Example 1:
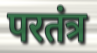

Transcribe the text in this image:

परतंत्र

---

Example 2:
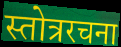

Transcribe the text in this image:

स्तोत्ररचना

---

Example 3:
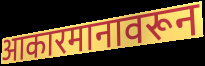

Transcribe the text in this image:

आकारमानावरून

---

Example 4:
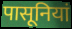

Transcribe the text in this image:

पासूनियां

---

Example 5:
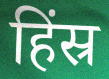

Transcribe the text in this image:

हिंस्र